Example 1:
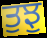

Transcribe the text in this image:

ਤੁਝੁ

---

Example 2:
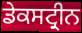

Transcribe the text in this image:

ਡੇਕਸਟ੍ਰੀਨ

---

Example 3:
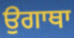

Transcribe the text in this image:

ਉਗਾਥਾ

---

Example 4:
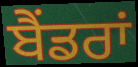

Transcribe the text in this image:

ਬੈਂਡਰਾਂ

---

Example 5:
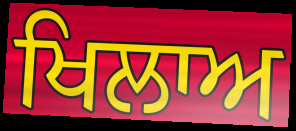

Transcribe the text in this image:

ਖਿਲਾਅ